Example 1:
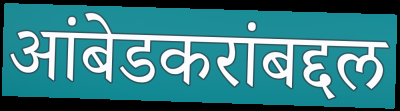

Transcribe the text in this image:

आंबेडकरांबद्दल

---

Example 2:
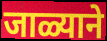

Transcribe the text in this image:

जाळ्याने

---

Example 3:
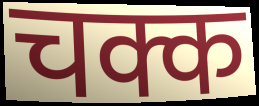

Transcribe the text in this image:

चक्क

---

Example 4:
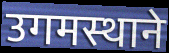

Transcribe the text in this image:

उगमस्थाने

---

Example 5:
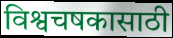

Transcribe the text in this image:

विश्वचषकासाठी